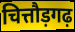
चित्तौड़गढ़